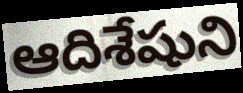
ఆదిశేషుని